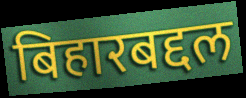
बिहारबद्दल